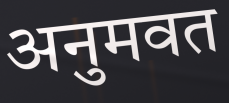
अनुमवत